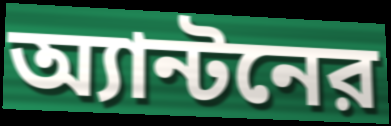
অ্যান্টনের